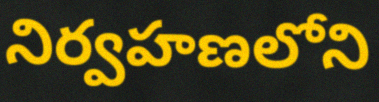
నిర్వహణలోని